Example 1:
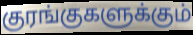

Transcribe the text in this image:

குரங்குகளுக்கும்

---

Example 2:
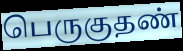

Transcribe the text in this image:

பெருகுதண்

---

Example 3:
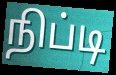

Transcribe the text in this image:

நிப்டி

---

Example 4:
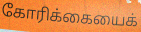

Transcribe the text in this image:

கோரிக்கையைக்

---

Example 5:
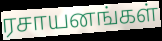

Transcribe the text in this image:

ரசாயனங்கள்